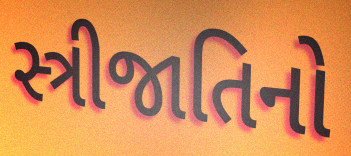
સ્ત્રીજાતિનો